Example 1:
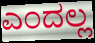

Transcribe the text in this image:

ಎಂದಲ್ಲ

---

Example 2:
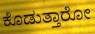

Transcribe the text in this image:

ಕೊಡುತ್ತಾರೋ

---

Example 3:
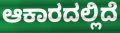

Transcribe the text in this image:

ಆಕಾರದಲ್ಲಿದೆ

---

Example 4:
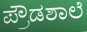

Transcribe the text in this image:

ಪ್ರೌಡಶಾಲೆ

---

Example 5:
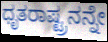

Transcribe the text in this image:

ಧೃತರಾಷ್ಟ್ರನನ್ನೇ